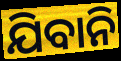
ଯିବାନି